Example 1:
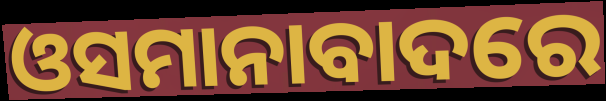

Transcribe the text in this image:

ଓସମାନାବାଦରେ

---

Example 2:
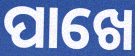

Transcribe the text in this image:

ପାଖେ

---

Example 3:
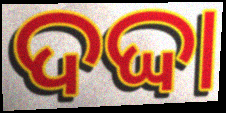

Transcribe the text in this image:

ଦଦ୍ଦା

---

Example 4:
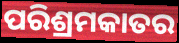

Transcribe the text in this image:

ପରିଶ୍ରମକାତର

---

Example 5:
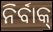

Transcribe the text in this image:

ନିର୍ବାକ୍